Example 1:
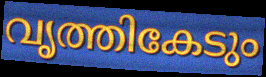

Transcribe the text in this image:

വൃത്തികേടും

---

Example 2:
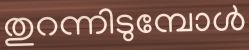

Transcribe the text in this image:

തുറന്നിടുമ്പോൾ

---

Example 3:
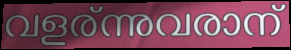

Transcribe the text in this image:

വളര്ന്നുവരാന്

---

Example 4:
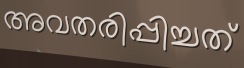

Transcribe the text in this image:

അവതരിപ്പിച്ചത്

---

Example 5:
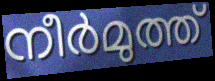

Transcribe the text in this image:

നീർമുത്ത്